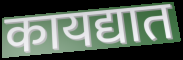
कायद्यात